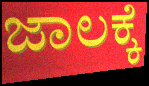
ಜಾಲಕ್ಕೆ